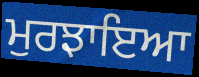
ਮੁਰਝਾਇਆ